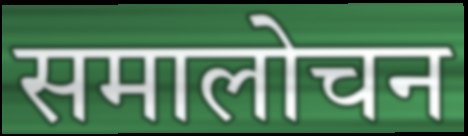
समालोचन